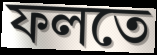
ফলতে